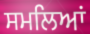
ਸਮਲਿਆਂ